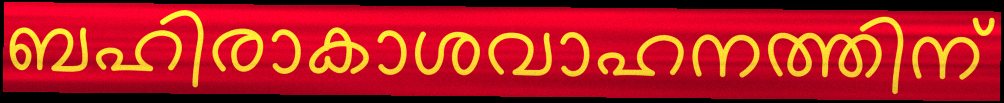
ബഹിരാകാശവാഹനത്തിന്